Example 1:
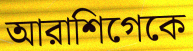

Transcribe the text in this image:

আরাশিগেকে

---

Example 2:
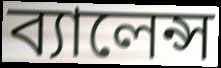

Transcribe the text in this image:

ব্যালেন্স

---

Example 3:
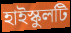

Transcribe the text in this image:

হাইস্কুলটি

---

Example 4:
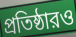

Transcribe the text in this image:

প্রতিষ্ঠারও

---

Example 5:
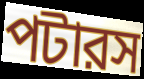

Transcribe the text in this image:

পটারস